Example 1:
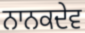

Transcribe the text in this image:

ਨਾਨਕਦੇਵ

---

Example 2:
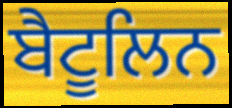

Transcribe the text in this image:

ਬੈਟੂਲਿਨ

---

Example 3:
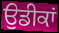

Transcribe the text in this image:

ਉਡੀਕਾਂ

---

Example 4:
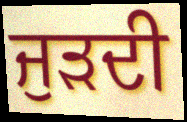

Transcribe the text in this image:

ਜੁੜਦੀ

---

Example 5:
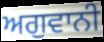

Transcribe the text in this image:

ਅਗੁਵਾਨੀ